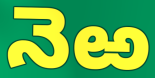
నెఱ